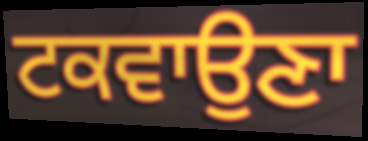
ਟਕਵਾਉਣਾ